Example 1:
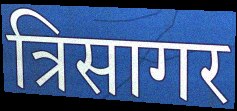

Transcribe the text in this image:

त्रिसागर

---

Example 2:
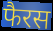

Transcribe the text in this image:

फैरस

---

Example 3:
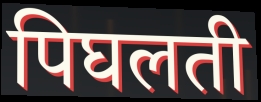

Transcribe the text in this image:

पिघलती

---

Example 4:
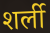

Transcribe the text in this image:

शर्ली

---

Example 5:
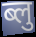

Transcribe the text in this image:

ब्लु